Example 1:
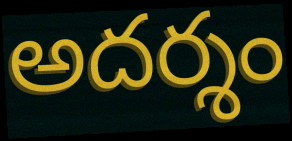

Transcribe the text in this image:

అదర్శం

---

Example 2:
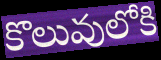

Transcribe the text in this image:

కొలువులోకి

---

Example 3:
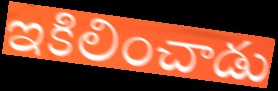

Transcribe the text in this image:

ఇకిలించాడు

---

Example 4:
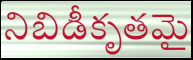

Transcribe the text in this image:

నిబిడీకృతమై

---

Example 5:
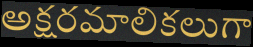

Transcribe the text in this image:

అక్షరమాలికలుగా